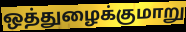
ஒத்துழைக்குமாறு